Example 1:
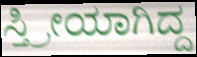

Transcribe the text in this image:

ಸ್ತ್ರೀಯಾಗಿದ್ದ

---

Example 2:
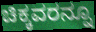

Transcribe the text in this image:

ಚಿಕ್ಕವರನ್ನೂ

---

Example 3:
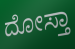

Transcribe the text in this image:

ದೋಸ್ತಾ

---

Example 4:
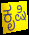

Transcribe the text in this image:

ಕೃಷಿ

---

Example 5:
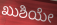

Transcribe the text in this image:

ಖುಶಿಯೇ